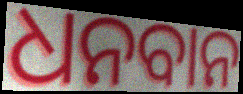
ଧନବାନ